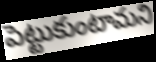
పెట్టుకుంటామని